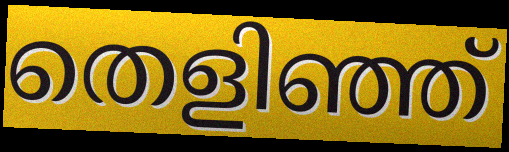
തെളിഞ്ഞ്